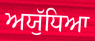
ਅਯੁੱਧਿਆ